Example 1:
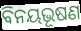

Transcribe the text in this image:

ବିନୟଭୂଷଣ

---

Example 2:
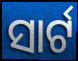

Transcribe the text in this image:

ସାର୍ଟ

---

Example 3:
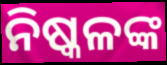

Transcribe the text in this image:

ନିଷ୍କଳଙ୍କ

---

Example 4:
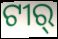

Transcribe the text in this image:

ଟୀର୍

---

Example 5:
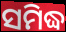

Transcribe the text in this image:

ସମିଦ୍ଧ